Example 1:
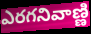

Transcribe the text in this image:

ఎరగనివాణ్ణి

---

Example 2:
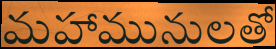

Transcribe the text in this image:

మహామునులతో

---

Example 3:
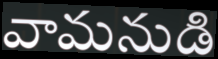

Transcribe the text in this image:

వామనుడి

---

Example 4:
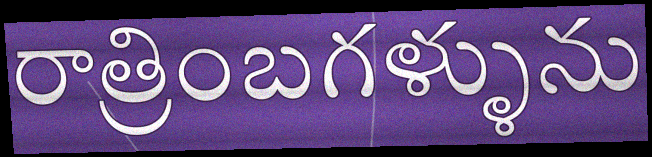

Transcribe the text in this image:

రాత్రింబగళ్ళును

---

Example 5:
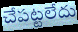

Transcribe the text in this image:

చేపట్టలేదు